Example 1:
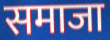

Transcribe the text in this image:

समाजा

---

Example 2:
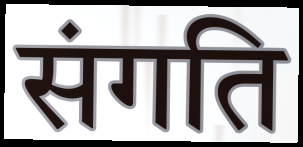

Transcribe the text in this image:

संगति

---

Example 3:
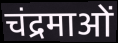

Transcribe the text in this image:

चंद्रमाओं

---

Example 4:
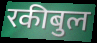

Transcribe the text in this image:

रकीबुल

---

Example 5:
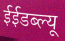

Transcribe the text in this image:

ईईडब्ल्यू